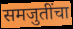
समजुतींचा